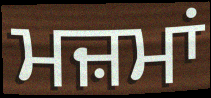
ਮਜ਼ਮਾਂ